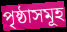
পৃষ্ঠাসমূহ